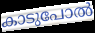
കാടുപോൽ